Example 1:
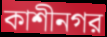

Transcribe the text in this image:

কাশীনগর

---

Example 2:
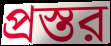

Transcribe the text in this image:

প্রস্তর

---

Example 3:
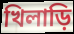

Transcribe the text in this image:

খিলাড়ি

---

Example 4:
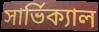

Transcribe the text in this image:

সার্ভিক্যাল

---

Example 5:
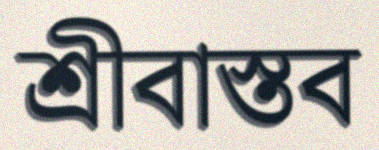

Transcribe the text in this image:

শ্রীবাস্তব